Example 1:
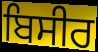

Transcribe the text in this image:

ਬਿਸੀਰ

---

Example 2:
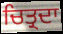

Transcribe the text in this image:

ਚਿਤ੍ਰਦਾ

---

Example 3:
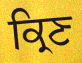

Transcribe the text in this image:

ਕ੍ਰਿਣ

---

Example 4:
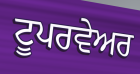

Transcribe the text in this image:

ਟੂਪਰਵੇਅਰ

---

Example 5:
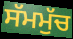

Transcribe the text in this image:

ਸੱਮਮੁੱਚ